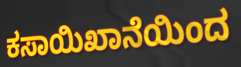
ಕಸಾಯಿಖಾನೆಯಿಂದ